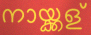
നായ്ക്കള്